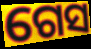
ଗେସ